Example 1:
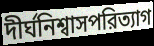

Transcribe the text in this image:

দীর্ঘনিশ্বাসপরিত্যাগ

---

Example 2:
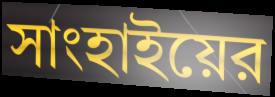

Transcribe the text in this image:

সাংহাইয়ের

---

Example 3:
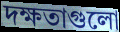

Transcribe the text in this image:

দক্ষতাগুলো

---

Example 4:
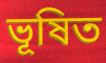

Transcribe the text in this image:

ভূষিত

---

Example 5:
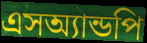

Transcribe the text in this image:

এসঅ্যান্ডপি